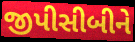
જીપીસીબીને